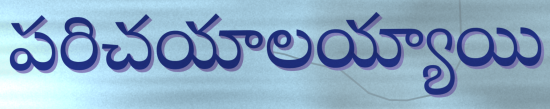
పరిచయాలయ్యాయి